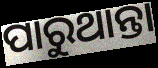
ପାରୁଥାନ୍ତା